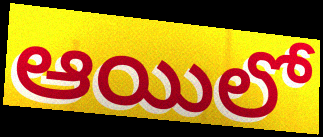
ఆయిలో